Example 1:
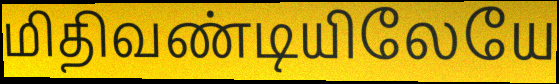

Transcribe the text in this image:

மிதிவண்டியிலேயே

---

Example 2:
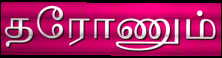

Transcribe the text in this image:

தரோணும்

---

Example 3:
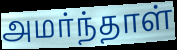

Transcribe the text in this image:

அமர்ந்தாள்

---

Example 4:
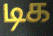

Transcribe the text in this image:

டிக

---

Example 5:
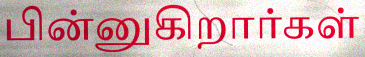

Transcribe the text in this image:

பின்னுகிறார்கள்